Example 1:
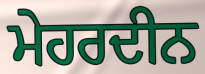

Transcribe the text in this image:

ਮੇਹਰਦੀਨ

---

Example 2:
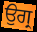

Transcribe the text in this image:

ਉਗ੍ਰ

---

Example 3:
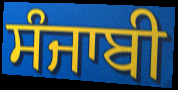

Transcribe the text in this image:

ਸੰਜਾਬੀ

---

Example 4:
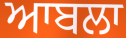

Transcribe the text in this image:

ਆਬਲਾ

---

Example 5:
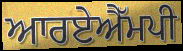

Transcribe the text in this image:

ਆਰਏਐੱਮਪੀ